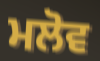
ਮਲੋਵ